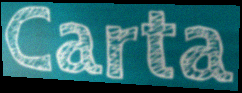
Carta